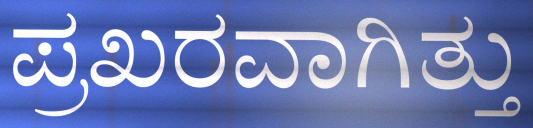
ಪ್ರಖರವಾಗಿತ್ತು